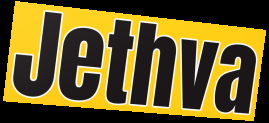
Jethva